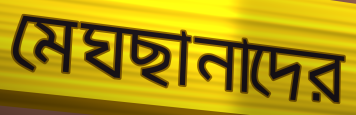
মেঘছানাদের